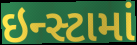
ઇન્સ્ટામાં